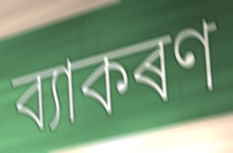
ব্যাকৰণ